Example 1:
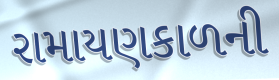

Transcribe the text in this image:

રામાયણકાળની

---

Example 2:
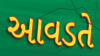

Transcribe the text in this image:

આવડતે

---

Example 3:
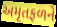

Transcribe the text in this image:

અમૃતફળને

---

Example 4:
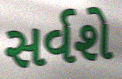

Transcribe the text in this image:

સર્વશે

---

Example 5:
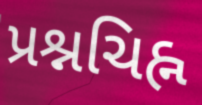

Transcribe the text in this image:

પ્રશ્નચિહ્ન